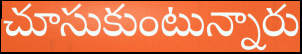
చూసుకుంటున్నారు